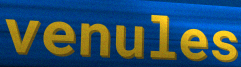
venules